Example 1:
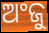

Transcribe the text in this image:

ଅଂଜୁ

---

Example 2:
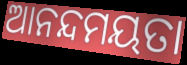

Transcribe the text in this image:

ଆନନ୍ଦମୟତା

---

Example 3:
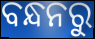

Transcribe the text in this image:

ବନ୍ଧନରୁ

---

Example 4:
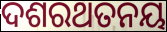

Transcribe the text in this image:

ଦଶରଥତନୟ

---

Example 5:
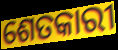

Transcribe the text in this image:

ଶେତକାରୀ